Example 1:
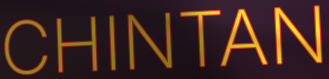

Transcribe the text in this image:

CHINTAN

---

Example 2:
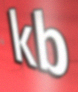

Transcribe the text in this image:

kb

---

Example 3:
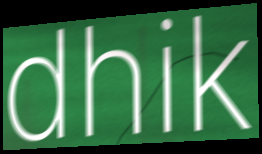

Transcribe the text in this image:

dhik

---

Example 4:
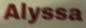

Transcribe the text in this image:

Alyssa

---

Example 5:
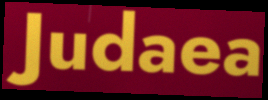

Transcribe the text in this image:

Judaea